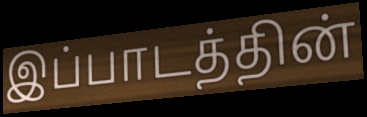
இப்பாடத்தின்